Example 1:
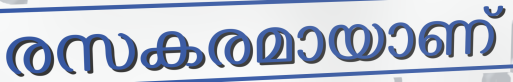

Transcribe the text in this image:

രസകരമായാണ്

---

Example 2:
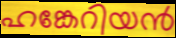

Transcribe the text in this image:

ഹങ്കേറിയൻ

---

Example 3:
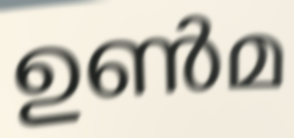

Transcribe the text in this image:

ഉൺമ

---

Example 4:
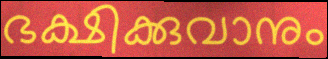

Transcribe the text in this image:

ഭക്ഷിക്കുവാനും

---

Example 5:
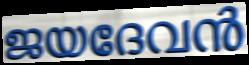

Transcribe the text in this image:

ജയദേവൻ